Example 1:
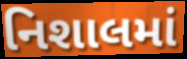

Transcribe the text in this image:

નિશાલમાં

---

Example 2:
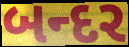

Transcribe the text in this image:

બન્દર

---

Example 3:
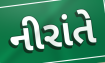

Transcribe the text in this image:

નીરાંતે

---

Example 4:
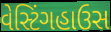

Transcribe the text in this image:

વેસ્ટિંગહાઉસ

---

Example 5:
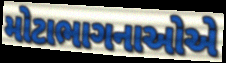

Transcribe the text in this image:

મોટાભાગનાઓએ